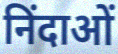
निंदाओं